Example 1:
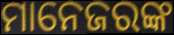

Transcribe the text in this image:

ମାନେଜରଙ୍କ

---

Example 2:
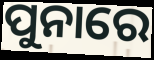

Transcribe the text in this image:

ପୁନାରେ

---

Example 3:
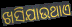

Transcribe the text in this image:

ଖସିଯାଉଥାଏ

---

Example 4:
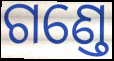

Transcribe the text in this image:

ଗଣ୍ଡେ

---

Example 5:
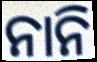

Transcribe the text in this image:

ନାନି